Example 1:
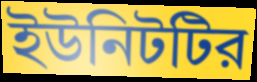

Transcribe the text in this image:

ইউনিটটির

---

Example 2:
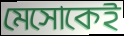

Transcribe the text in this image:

মেসোকেই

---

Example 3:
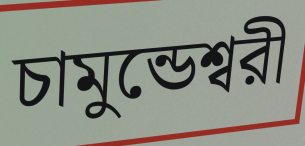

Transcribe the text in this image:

চামুন্ডেশ্বরী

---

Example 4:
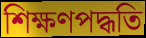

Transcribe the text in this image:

শিক্ষণপদ্ধতি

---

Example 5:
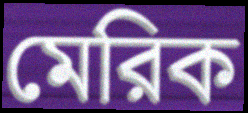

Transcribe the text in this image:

মেরিক